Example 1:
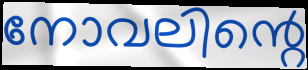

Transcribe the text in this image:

നോവലിന്റെ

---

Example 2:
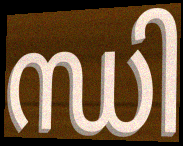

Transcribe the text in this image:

ന്ധി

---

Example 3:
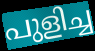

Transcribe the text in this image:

പുളിച്ച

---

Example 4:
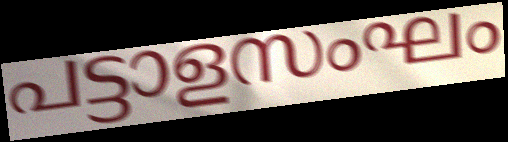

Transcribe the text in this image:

പട്ടാളസംഘം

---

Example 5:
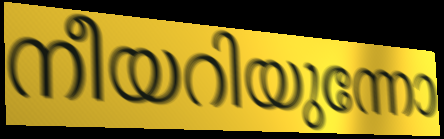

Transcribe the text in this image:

നീയറിയുന്നോ